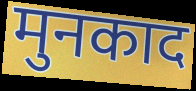
मुनकाद